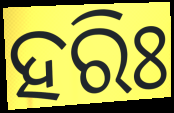
ହରିଃ